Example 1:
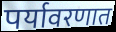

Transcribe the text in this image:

पर्यावरणात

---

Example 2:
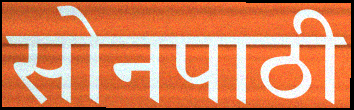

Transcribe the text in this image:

सोनपाठी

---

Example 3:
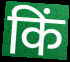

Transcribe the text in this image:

किं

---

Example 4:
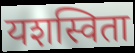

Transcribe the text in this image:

यशस्विता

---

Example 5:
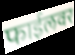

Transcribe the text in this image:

फाईलवर